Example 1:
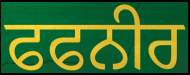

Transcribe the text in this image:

ਫਫਨੀਰ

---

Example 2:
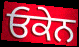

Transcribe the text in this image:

ਓਕੇਨ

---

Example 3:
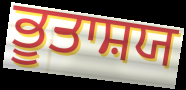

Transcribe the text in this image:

ਭੂਤਾਸ਼ਯ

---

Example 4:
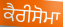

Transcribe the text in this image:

ਕੈਰੀਸੋਮਾ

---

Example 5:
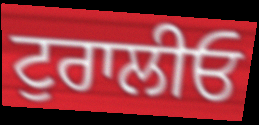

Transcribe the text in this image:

ਟੁਰਾਲੀਓ